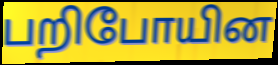
பறிபோயின